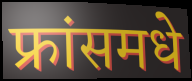
फ्रांसमधे